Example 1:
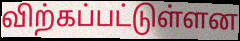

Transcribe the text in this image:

விற்கப்பட்டுள்ளன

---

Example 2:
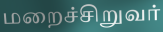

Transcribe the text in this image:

மறைச்சிறுவர்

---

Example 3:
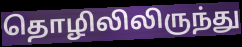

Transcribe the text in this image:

தொழிலிலிருந்து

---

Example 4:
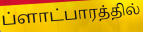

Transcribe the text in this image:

ப்ளாட்பாரத்தில்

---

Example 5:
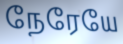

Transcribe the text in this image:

நேரேயே